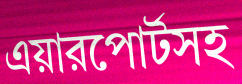
এয়ারপোর্টসহ